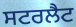
ਸਟਰਲੈਟ